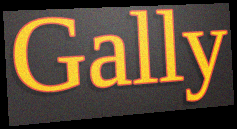
Gally